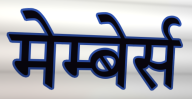
मेम्बेर्स